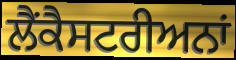
ਲੈਂਕੈਸਟਰੀਅਨਾਂ